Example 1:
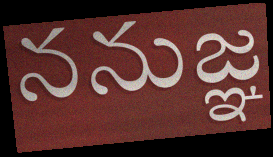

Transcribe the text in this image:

ననుజ్ఞ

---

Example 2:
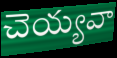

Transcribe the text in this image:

చెయ్యవా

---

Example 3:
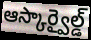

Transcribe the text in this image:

ఆస్కార్వైల్డ్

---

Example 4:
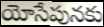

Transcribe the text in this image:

యోసేపునకు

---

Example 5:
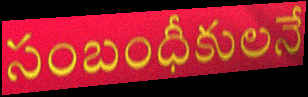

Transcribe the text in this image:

సంబంధీకులనే